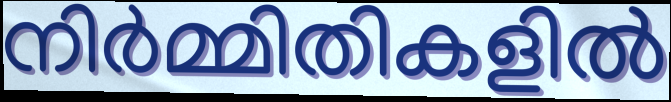
നിർമ്മിതികളിൽ